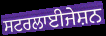
ਸਟਰਲਾਈਜੇਸ਼ਨ